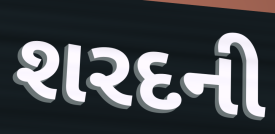
શરદની